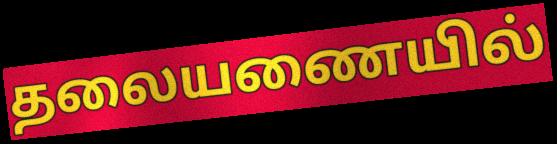
தலையணையில்